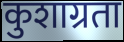
कुशाग्रता